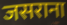
जसराना